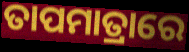
ତାପମାତ୍ରାରେ